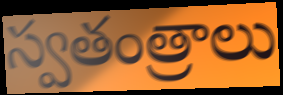
స్వతంత్రాలు